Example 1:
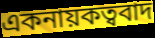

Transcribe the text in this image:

একনায়কত্ববাদ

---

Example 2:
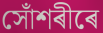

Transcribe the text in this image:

সোঁশৰীৰে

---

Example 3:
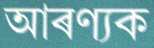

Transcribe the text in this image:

আৰণ্যক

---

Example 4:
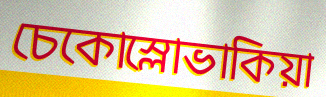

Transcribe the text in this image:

চেকোস্লোভাকিয়া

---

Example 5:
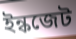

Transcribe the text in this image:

ইন্কজেট